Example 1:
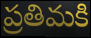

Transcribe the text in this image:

ప్రతిమకి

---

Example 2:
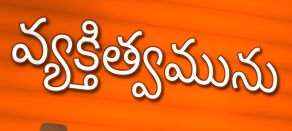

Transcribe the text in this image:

వ్యక్తిత్వమును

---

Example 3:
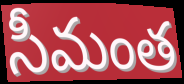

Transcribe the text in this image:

సీమంత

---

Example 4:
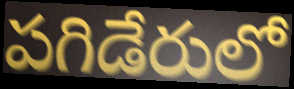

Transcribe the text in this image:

పగిడేరులో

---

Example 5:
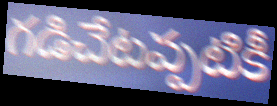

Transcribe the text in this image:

గడిచేటప్పటికీ